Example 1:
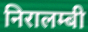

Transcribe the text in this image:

निरालम्बी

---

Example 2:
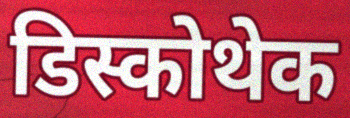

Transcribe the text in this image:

डिस्कोथेक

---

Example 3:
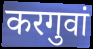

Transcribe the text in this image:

करगुवां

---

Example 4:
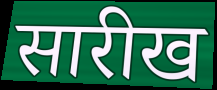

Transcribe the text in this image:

सारीख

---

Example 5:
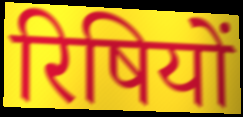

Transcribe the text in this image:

रिषियों